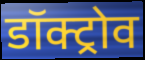
डॉक्ट्रोव